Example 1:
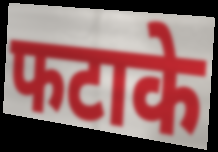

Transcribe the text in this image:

फटाके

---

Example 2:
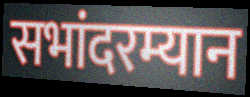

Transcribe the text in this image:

सभांदरम्यान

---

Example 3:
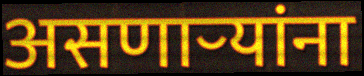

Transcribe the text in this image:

असणाऱ्यांना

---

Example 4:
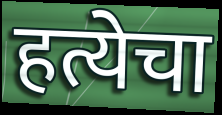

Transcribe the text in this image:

हत्येचा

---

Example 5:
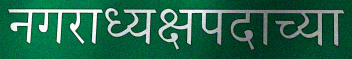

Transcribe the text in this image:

नगराध्यक्षपदाच्या